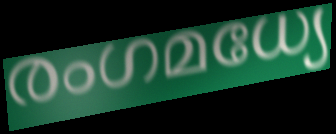
രംഗമധ്യേ